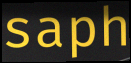
saph